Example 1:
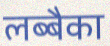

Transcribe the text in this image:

लब्बैका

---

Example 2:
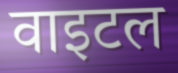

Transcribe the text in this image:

वाइटल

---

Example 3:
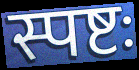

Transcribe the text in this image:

स्पष्टः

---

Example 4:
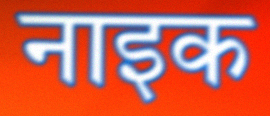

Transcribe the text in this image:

नाइक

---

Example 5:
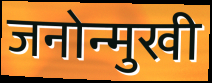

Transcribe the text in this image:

जनोन्मुखी